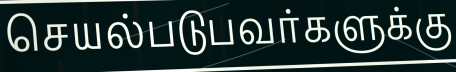
செயல்படுபவர்களுக்கு